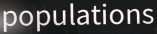
populations